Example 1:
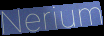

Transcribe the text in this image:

Nerium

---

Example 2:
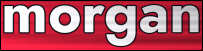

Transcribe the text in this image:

morgan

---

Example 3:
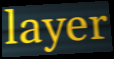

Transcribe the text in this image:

layer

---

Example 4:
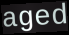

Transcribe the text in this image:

aged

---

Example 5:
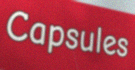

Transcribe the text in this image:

Capsules